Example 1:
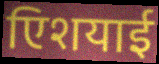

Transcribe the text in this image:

एिशयाई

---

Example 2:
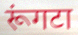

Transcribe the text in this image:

रूंगटा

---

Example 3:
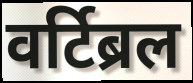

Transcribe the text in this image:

वर्टिब्रल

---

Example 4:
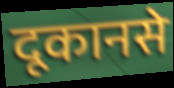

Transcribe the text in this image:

दूकानसे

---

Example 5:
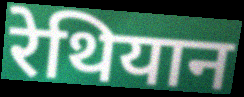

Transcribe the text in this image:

रेथियान